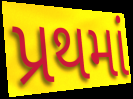
પ્રથમાં